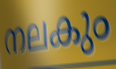
നലകും